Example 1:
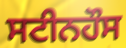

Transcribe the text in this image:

ਸਟੀਨਹੌਸ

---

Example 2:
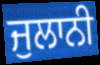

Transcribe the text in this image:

ਜੁਲਾਨੀ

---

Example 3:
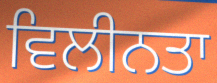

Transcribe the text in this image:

ਵਿਲੀਨਤਾ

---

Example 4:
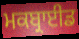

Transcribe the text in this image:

ਮਕਬ੍ਰਾਈਡ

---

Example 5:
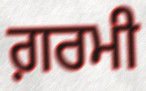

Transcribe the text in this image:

ਗ਼ਰਮੀ